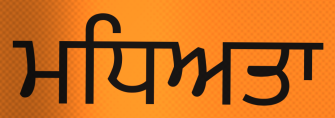
ਮਧਿਅਤਾ